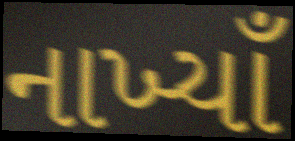
નાખ્યાઁ